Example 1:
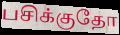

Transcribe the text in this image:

பசிக்குதோ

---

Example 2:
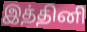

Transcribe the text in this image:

இத்தினி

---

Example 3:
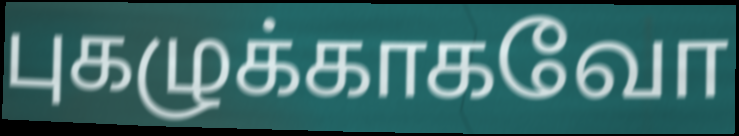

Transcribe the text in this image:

புகழுக்காகவோ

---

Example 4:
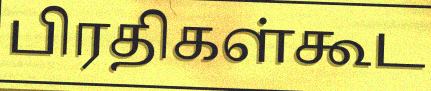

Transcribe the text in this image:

பிரதிகள்கூட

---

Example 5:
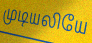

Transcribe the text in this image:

முடியலியே